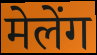
मेलेंग